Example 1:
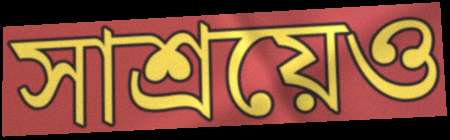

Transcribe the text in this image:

সাশ্রয়েও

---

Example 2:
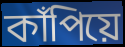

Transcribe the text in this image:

কাঁপিয়ে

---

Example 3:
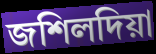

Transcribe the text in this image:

জশিলদিয়া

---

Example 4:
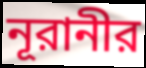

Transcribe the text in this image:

নূরানীর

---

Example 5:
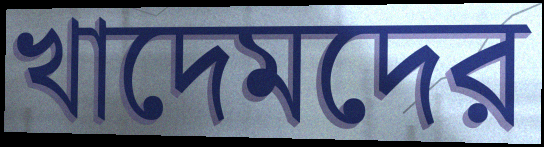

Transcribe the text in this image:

খাদেমদের